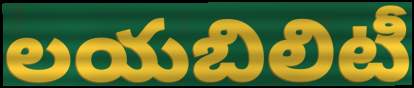
లయబిలిటీ